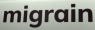
migrain